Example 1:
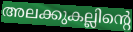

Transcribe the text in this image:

അലക്കുകല്ലിന്റെ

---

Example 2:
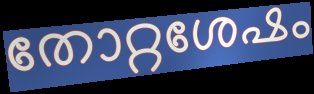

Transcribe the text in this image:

തോറ്റശേഷം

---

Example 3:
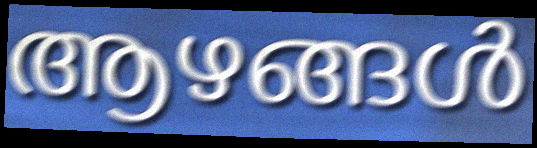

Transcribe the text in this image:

ആഴങ്ങൾ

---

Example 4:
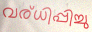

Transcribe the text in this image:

വര്ധിപ്പിച്ചു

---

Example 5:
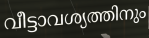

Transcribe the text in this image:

വീട്ടാവശ്യത്തിനും